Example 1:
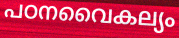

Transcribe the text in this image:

പഠനവൈകല്യം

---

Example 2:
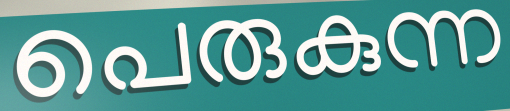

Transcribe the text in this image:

പെരുകുന്ന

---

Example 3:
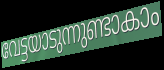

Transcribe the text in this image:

വേട്ടയാടുന്നുണ്ടാകാം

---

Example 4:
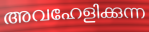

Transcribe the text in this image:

അവഹേളിക്കുന്ന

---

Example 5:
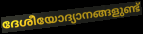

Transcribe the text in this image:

ദേശീയോദ്യാനങ്ങളുണ്ട്